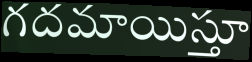
గదమాయిస్తూ